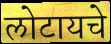
लोटायचे